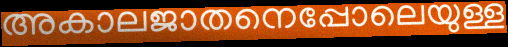
അകാലജാതനെപ്പോലെയുള്ള